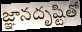
జ్ఞానదృష్టితో